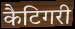
कैटिगरी